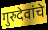
गुरुदेवांचे